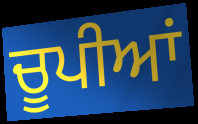
ਚੂਪੀਆਂ